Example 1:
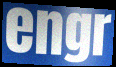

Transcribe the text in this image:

engr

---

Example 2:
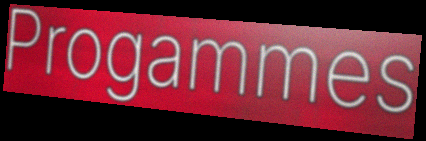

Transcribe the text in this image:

Progammes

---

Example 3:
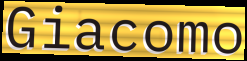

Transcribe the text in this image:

Giacomo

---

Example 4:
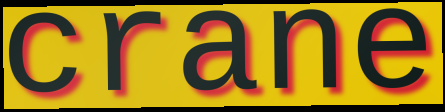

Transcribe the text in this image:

crane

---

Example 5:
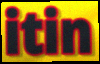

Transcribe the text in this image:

itin